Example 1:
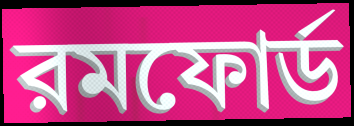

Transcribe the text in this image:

রমফোর্ড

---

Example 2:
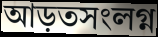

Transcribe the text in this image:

আড়তসংলগ্ন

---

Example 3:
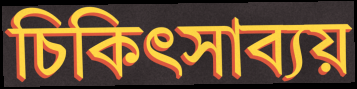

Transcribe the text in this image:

চিকিৎসাব্যয়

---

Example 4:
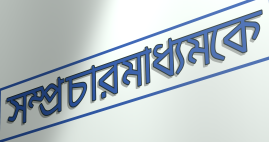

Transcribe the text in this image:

সম্প্রচারমাধ্যমকে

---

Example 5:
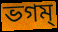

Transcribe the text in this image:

ভগম্